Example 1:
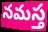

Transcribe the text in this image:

నమస్త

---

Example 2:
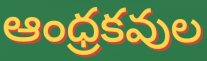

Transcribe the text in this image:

ఆంధ్రకవుల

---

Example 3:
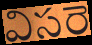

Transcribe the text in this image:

విసరె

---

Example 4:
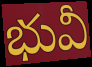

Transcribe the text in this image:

భువీ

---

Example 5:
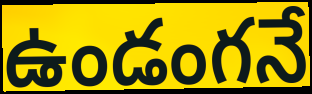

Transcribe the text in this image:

ఉండంగనే